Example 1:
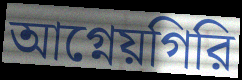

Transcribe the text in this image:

আগ্নেয়গিরি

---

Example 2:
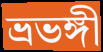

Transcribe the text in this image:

ভ্রভঙ্গী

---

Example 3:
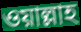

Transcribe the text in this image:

ওয়াল্লাহ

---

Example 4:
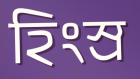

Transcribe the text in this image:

হিংস্র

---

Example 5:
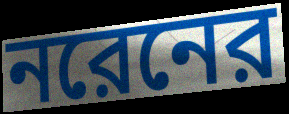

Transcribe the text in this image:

নরেনের